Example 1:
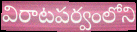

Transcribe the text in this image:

విరాటపర్వంలోని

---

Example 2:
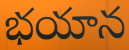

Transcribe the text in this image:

భయాన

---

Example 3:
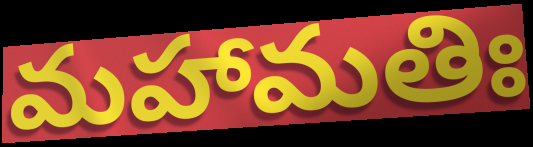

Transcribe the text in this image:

మహామతిః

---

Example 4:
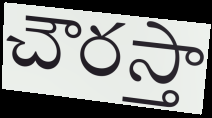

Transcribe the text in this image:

చౌరస్తా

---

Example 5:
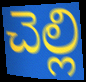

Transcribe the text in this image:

చెల్లి